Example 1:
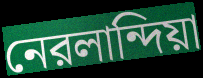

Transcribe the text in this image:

নেরলান্দিয়া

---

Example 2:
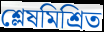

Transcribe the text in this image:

শ্লেষমিশ্রিত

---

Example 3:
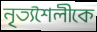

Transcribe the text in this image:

নৃত্যশৈলীকে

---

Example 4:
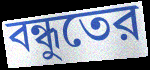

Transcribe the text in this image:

বন্ধুতের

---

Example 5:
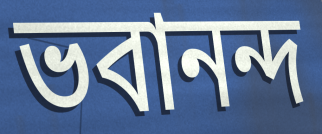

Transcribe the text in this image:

ভবানন্দ